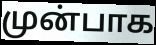
முன்பாக